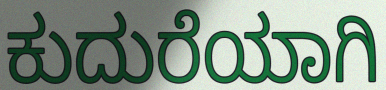
ಕುದುರೆಯಾಗಿ